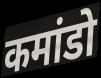
कमांडो